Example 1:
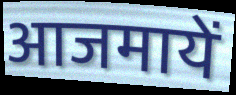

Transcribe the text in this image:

आजमायें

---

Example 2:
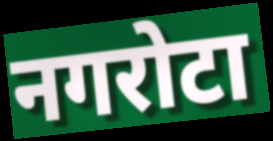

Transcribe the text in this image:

नगरोटा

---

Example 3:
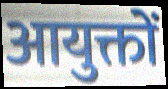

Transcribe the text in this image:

आयुक्तों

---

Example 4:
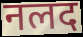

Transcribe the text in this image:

नलद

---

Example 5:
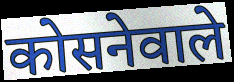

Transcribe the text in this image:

कोसनेवाले